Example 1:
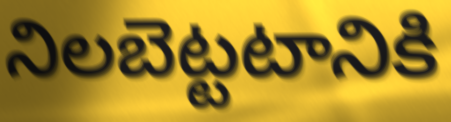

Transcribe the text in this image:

నిలబెట్టటానికి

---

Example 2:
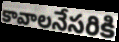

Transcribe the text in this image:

కావాలనేసరికి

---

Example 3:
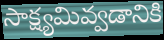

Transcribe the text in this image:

సాక్ష్యమివ్వడానికి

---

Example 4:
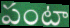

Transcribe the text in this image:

పంటా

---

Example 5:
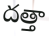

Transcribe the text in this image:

దత్తా